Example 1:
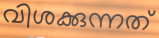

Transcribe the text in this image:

വിശക്കുന്നത്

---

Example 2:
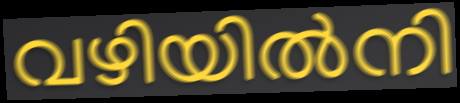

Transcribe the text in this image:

വഴിയിൽനി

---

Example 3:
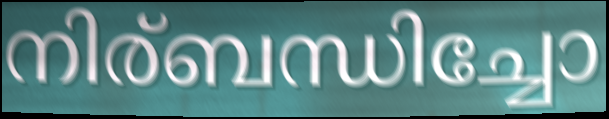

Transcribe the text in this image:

നിര്ബന്ധിച്ചോ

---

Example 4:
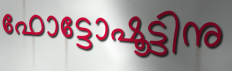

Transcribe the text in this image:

ഫോട്ടോഷൂട്ടിനു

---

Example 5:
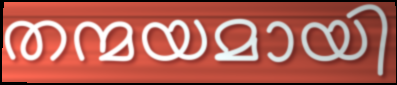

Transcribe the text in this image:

തന്മയമായി